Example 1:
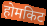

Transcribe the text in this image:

होमकिट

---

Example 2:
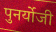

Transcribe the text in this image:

पुनर्योजी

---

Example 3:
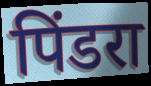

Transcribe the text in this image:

पिंडरा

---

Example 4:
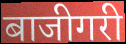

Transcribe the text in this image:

बाजीगरी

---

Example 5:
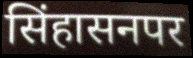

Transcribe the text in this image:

सिंहासनपर